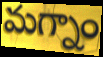
మగ్నాం